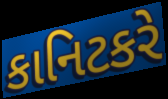
કાનિટકરે